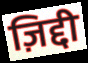
ज़िद्दी